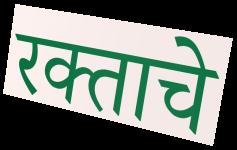
रक्ताचे